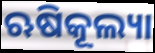
ଋଷିକୂଲ୍ୟା